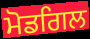
ਮੋਡਗਿਲ